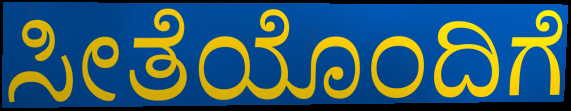
ಸೀತೆಯೊಂದಿಗೆ